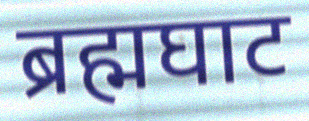
ब्रह्मघाट